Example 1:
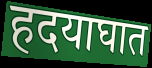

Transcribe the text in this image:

हदयाघात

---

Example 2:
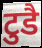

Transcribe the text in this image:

टुडै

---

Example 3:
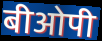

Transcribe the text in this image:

बीओपी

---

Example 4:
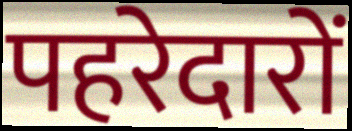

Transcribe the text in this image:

पहरेदारों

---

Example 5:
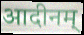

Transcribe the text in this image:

आदीनम्